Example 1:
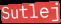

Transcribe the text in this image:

Sutlej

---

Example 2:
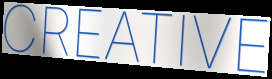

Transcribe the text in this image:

CREATIVE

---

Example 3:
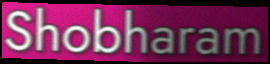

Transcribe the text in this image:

Shobharam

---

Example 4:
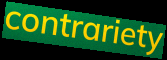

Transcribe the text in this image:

contrariety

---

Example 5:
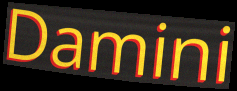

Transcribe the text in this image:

Damini